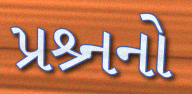
પ્રશ્ર્નનો